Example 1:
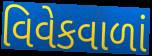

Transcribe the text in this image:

વિવેકવાળાં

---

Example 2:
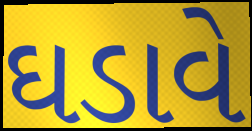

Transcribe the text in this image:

ઘડાવે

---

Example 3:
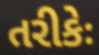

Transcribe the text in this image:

તરીકેઃ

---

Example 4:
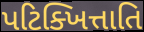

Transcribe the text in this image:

પટિક્ખિત્તાતિ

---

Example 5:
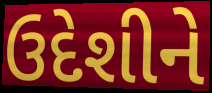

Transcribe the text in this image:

ઉદેશીને